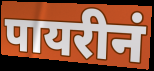
पायरीनं